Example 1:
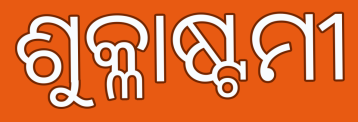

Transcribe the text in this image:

ଶୁକ୍ଳାଷ୍ଟମୀ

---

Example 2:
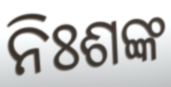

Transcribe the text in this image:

ନିଃଶଙ୍କ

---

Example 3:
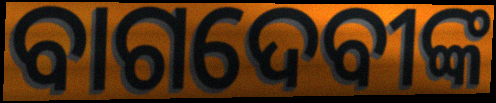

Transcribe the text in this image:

ବାଗଦେବୀଙ୍କ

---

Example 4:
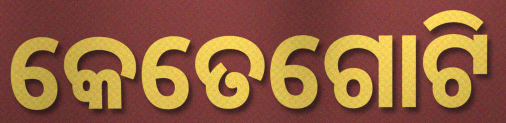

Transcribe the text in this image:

କେତେଗୋଟି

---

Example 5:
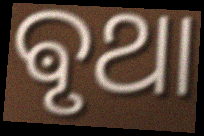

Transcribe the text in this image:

ଵୃଥା